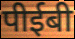
पीईबी